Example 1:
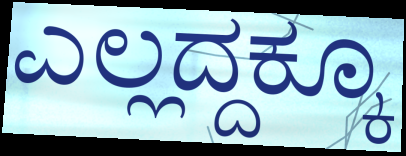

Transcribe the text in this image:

ಎಲ್ಲದ್ದಕ್ಕೂ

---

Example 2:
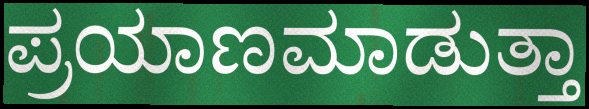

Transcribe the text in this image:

ಪ್ರಯಾಣಮಾಡುತ್ತಾ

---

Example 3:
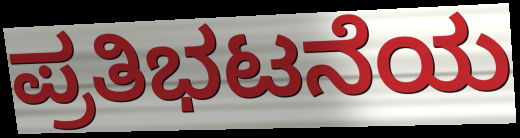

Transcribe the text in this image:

ಪ್ರತಿಭಟನೆಯ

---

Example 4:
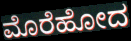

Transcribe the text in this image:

ಮೊರೆಹೋದ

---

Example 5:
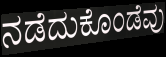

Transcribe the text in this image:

ನಡೆದುಕೊಂಡೆವು